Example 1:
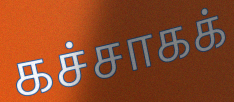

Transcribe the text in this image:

கச்சாகக்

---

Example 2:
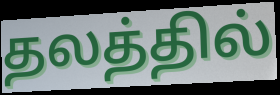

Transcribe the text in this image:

தலத்தில்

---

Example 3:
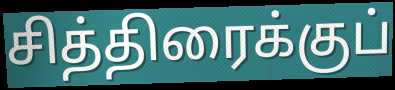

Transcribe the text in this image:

சித்திரைக்குப்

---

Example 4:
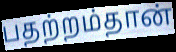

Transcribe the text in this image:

பதற்றம்தான்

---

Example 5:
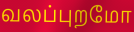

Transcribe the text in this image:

வலப்புறமோ